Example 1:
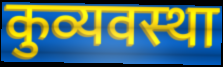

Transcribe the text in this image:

कुव्यवस्था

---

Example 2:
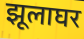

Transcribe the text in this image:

झूलाघर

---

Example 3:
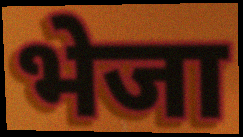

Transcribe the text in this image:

भेजा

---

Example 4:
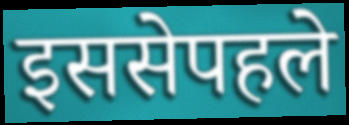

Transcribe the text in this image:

इससेपहले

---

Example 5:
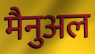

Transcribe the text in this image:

मैनुअल